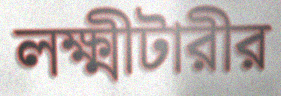
লক্ষ্মীটারীর